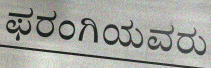
ಫರಂಗಿಯವರು